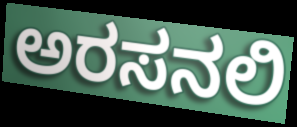
ಅರಸನಲಿ